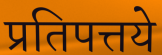
प्रतिपत्तये